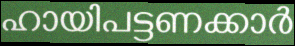
ഹായിപട്ടണക്കാർ